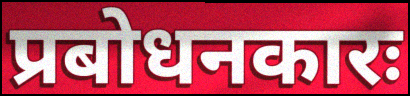
प्रबोधनकारः